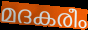
മദകരീം